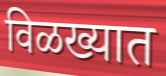
विळख्यात